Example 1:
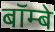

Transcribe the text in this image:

बॉम्बे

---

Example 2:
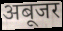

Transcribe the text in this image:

अबूजर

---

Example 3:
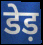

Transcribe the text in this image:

डेड़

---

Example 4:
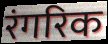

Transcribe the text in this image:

रंगरिक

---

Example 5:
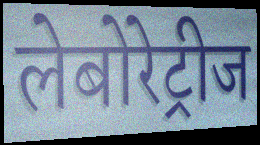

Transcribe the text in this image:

लेबोरेट्रीज